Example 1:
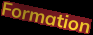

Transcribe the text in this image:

Formation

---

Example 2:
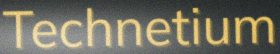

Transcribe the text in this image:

Technetium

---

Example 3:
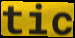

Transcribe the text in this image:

tic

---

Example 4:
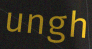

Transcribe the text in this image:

ungh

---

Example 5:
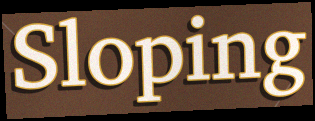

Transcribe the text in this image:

Sloping